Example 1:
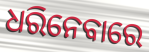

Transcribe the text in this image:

ଧରିନେବାରେ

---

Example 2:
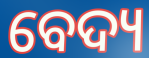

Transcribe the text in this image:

ବେଦ୍ୟ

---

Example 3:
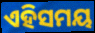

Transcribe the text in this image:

ଏହିସମୟ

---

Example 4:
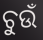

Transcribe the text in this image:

ଚୁଉଁ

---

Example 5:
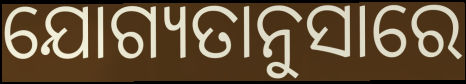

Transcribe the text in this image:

ଯୋଗ୍ୟତାନୁସାରେ